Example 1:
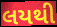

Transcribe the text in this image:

લયથી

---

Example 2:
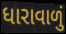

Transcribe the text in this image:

ધારાવાળું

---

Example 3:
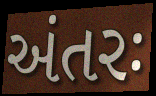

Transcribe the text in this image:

અંતરઃ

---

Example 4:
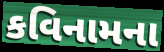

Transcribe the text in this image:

કવિનામના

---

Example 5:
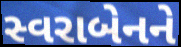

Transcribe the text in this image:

સ્વરાબેનને